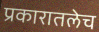
प्रकारातलेच